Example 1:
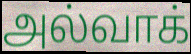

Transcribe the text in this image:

அல்வாக்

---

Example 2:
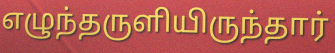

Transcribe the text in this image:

எழுந்தருளியிருந்தார்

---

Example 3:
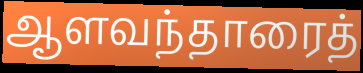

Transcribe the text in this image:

ஆளவந்தாரைத்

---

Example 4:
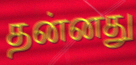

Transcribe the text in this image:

தன்னது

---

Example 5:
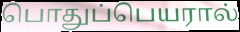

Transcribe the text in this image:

பொதுப்பெயரால்